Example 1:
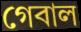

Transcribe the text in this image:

গেবাল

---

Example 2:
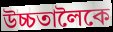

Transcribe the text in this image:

উচ্চতালৈকে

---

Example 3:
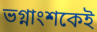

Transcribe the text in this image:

ভগ্নাংশকেই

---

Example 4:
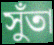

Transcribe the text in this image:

সুঁতা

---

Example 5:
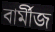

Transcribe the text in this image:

বাৰ্মীজ